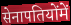
सेनापतियोंमें